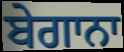
ਬੇਗਾਨਾ